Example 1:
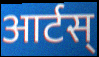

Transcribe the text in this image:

आर्टस्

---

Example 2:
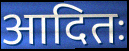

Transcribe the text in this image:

आदितः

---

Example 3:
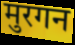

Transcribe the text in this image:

मुरगन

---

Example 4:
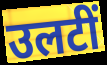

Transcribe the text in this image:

उलटीं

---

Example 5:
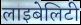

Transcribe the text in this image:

लाइबेलिटी